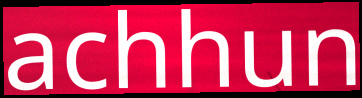
achhun